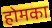
होमका